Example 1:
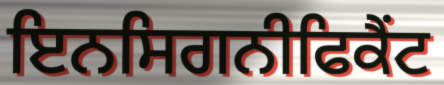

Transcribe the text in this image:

ਇਨਸਿਗਨੀਫਿਕੈਂਟ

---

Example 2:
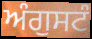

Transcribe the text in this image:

ਅੰਗੁਸਟੰ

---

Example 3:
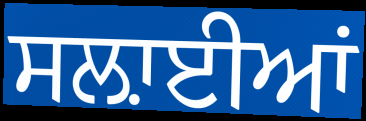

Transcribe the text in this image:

ਸਲ਼ਾਈਆਂ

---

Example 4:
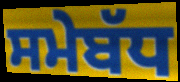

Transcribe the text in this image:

ਸਮੇਬੱਧ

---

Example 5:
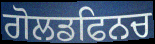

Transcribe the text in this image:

ਗੋਲਡਫਿਨਚ